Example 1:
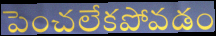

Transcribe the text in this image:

పెంచలేకపోవడం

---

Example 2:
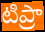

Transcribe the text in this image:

టిప్రా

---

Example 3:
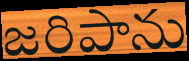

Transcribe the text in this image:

జరిపాను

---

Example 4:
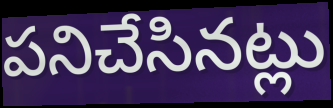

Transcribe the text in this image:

పనిచేసినట్లు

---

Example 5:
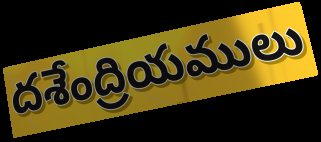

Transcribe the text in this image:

దశేంద్రియములు